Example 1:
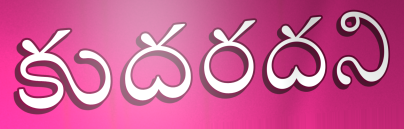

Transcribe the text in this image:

కుదరదని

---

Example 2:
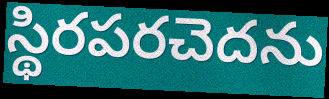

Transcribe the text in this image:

స్థిరపరచెదను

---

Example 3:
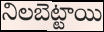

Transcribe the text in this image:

నిలబెట్టాయి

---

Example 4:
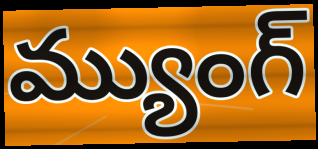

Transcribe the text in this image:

మ్యుంగ్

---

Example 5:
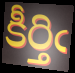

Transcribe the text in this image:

కీర్తిఁ